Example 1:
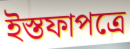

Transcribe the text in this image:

ইস্তফাপত্রে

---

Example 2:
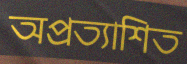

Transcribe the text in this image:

অপ্রত্যাশিত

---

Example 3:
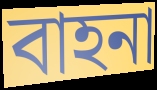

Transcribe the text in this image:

বাহনা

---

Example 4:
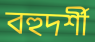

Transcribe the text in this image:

বহুদর্শী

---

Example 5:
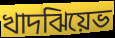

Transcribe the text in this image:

খাদঝিয়েভ